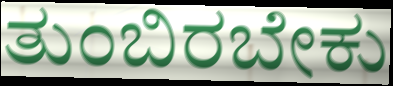
ತುಂಬಿರಬೇಕು